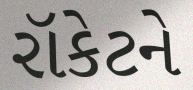
રૉકેટને